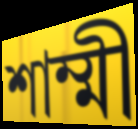
শাম্মী